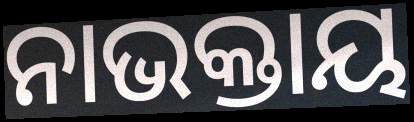
ନାଭକ୍ତାୟ